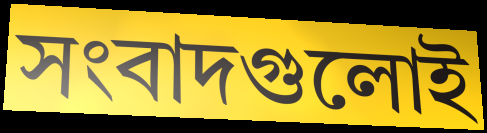
সংবাদগুলোই